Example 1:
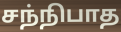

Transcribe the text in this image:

சந்நிபாத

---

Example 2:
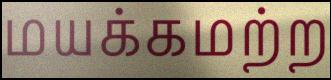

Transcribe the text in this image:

மயக்கமற்ற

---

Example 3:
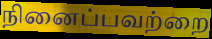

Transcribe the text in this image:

நினைப்பவற்றை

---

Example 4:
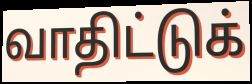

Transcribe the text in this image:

வாதிட்டுக்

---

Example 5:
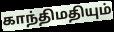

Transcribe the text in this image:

காந்திமதியும்